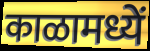
काळामध्यें